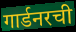
गार्डनरची